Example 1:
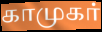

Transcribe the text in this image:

காமுகர்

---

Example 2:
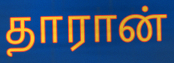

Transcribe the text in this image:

தாரான்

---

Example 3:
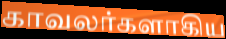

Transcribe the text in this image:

காவலர்களாகிய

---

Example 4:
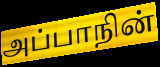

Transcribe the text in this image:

அப்பாநின்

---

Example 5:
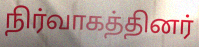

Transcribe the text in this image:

நிர்வாகத்தினர்